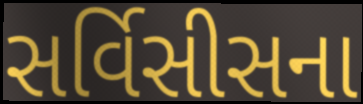
સર્વિસીસના